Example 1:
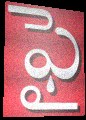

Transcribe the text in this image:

ఫై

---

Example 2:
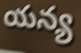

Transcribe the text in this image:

యన్య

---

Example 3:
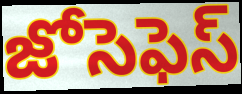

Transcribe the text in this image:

జోసెఫెస్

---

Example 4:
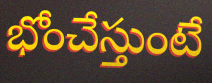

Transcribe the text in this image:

భోంచేస్తుంటే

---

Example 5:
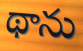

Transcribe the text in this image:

థాను